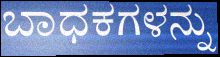
ಬಾಧಕಗಳನ್ನು